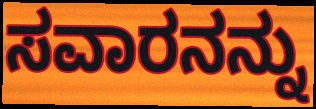
ಸವಾರನನ್ನು